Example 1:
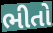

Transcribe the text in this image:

ભીતો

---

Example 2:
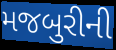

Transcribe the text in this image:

મજબુરીની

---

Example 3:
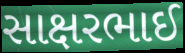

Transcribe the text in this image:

સાક્ષરભાઈ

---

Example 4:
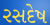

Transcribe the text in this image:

રસદેષ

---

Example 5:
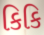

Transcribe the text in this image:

કિકિ